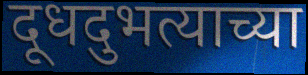
दूधदुभत्याच्या